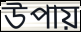
উপায়